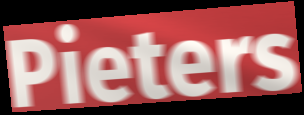
Pieters